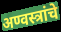
अण्वस्त्रांचे